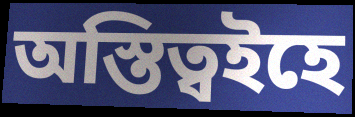
অস্তিত্বইহে